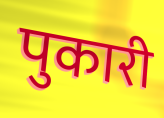
पुकारी